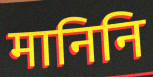
मानिनि